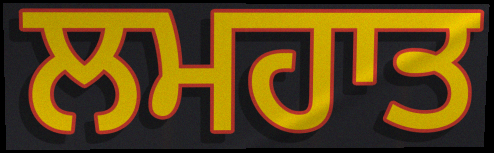
ਲਮਹਾਤ